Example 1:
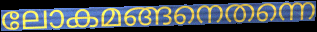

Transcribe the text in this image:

ലോകമങ്ങനെതന്നെ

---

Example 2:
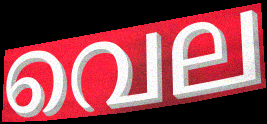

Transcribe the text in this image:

വെല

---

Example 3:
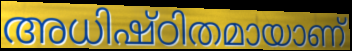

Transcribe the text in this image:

അധിഷ്ഠിതമായാണ്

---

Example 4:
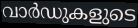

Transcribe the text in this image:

വാർഡുകളുടെ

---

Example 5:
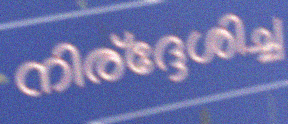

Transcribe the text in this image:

നിര്ദ്ദേശിച്ച